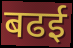
बढई